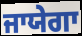
ਜਾਯੇਗਾ